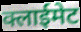
क्लाईमेट